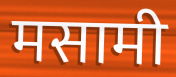
मसामी